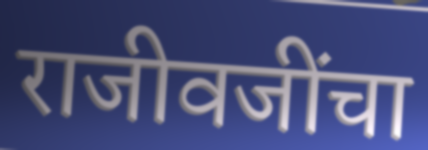
राजीवजींचा